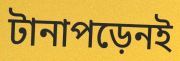
টানাপড়েনই